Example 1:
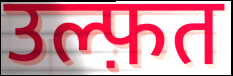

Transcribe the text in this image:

उल्फ़त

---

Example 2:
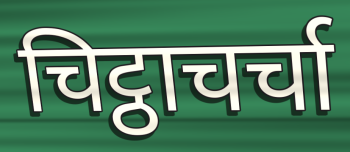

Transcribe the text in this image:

चिट्ठाचर्चा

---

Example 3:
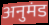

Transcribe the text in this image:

अनुमंड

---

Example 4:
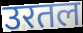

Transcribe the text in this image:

उरतल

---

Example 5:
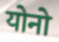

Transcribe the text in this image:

योनो